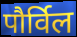
पौर्विल